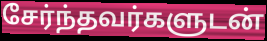
சேர்ந்தவர்களுடன்